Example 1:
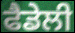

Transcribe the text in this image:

ਫੈਡੇਲੀ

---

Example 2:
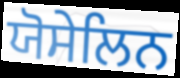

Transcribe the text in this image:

ਯੋਸੇਲਿਨ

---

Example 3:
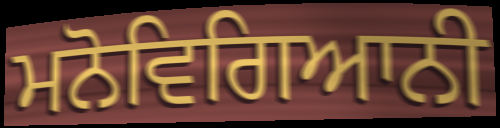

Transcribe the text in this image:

ਮਨੋਵਿਗਿਆਨੀ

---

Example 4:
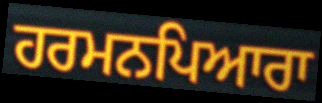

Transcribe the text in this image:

ਹਰਮਨਪਿਆਰਾ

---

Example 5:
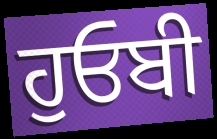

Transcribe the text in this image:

ਹੁਓਬੀ